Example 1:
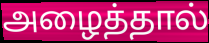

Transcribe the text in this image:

அழைத்தால்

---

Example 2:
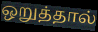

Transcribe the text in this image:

ஒறுத்தால்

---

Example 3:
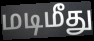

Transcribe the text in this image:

மடிமீது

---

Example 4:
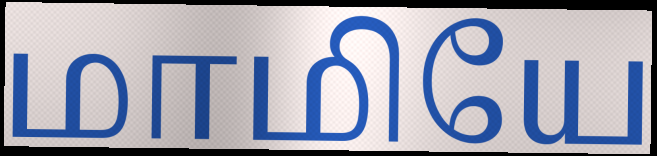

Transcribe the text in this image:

மாமியே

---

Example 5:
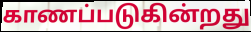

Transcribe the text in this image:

காணப்படுகின்றது